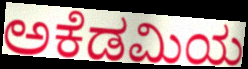
ಅಕೆಡಮಿಯ